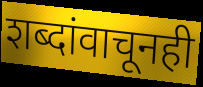
शब्दांवाचूनही